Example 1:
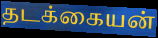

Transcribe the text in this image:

தடக்கையன்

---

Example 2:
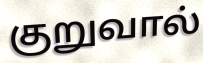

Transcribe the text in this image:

குறுவால்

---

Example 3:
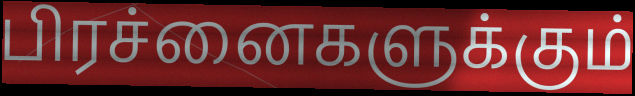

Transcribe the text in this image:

பிரச்னைகளுக்கும்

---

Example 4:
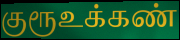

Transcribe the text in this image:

குரூஉக்கண்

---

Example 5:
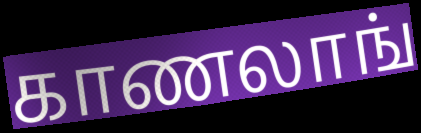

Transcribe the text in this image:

காணலாங்